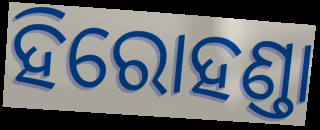
ହିରୋହଣ୍ଡା